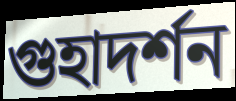
গুহাদর্শন